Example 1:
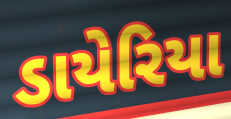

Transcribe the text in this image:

ડાયેરિયા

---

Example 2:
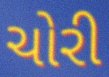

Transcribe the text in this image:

ચોરી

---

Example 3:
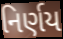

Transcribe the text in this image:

નિર્ણય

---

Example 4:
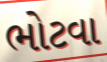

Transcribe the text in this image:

ભોટવા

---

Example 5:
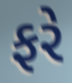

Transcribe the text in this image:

ફરે